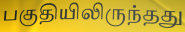
பகுதியிலிருந்தது